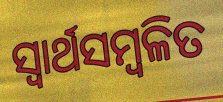
ସ୍ଵାର୍ଥସମ୍ବଳିତ